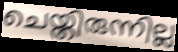
ചെയ്തിരുന്നില്ല